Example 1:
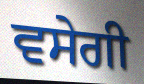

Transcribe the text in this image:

ਵਸੇਗੀ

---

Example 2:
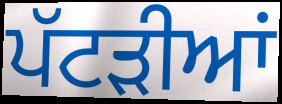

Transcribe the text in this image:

ਪੱਟੜੀਆਂ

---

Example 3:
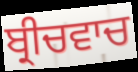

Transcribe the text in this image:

ਬ੍ਰੀਚਵਾਚ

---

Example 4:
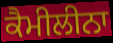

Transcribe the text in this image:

ਕੈਮੀਲੀਨਾ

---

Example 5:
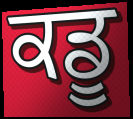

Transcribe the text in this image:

ਕਡੂ